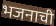
भजनाची